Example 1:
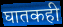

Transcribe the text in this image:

घातकही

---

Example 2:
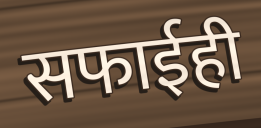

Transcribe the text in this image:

सफाईही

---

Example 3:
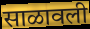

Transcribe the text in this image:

साळावली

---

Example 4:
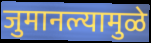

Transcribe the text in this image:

जुमानल्यामुळे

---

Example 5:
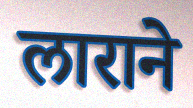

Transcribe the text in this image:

लाराने